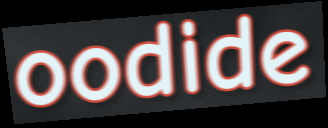
oodide